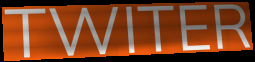
TWITER